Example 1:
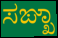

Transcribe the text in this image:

ಸಙ್ಖಾ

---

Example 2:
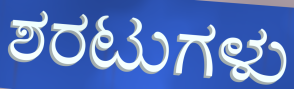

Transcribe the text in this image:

ಶರಟುಗಳು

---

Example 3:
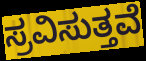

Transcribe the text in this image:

ಸ್ರವಿಸುತ್ತವೆ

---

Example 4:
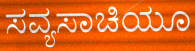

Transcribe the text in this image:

ಸವ್ಯಸಾಚಿಯೂ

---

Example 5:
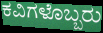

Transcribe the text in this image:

ಕವಿಗಳೊಬ್ಬರು